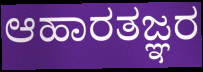
ಆಹಾರತಜ್ಞರ